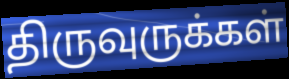
திருவுருக்கள்